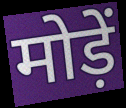
मोड़ें